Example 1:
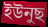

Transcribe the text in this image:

ইউনুছ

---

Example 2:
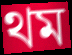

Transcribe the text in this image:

থম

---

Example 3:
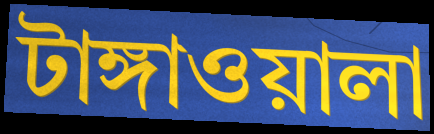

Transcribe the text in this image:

টাঙ্গাওয়ালা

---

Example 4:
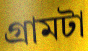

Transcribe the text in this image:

গ্রামটা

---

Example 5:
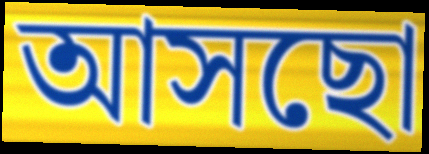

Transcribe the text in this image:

আসছো